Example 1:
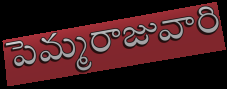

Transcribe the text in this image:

పెమ్మరాజువారి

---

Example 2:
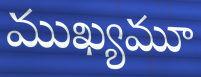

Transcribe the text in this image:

ముఖ్యమూ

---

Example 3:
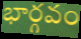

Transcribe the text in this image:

భార్గవం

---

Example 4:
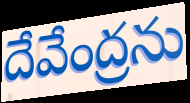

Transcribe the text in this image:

దేవేంద్రను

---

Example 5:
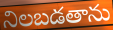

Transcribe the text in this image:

నిలబడతాను